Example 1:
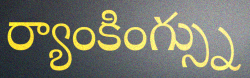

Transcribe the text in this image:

ర్యాంకింగ్స్ను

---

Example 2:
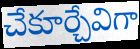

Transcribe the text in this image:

చేకూర్చేవిగా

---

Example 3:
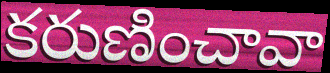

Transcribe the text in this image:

కరుణించావా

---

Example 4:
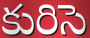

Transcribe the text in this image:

కురిసె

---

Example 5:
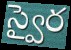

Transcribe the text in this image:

స్వైర